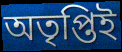
অতৃপ্তিই